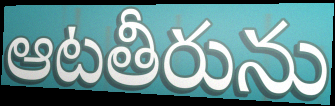
ఆటతీరును